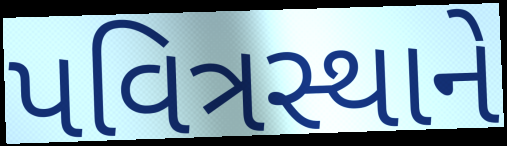
પવિત્રસ્થાને